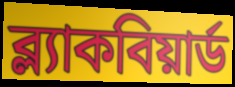
ব্ল্যাকবিয়ার্ড